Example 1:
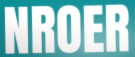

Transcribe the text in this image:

NROER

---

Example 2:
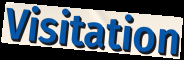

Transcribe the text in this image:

Visitation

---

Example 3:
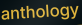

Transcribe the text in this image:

anthology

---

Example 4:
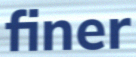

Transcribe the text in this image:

finer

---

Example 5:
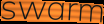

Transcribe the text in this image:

swarm